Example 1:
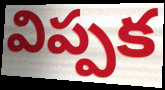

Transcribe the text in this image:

విప్పక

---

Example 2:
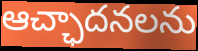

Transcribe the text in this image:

ఆచ్ఛాదనలను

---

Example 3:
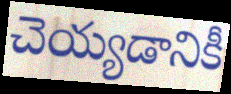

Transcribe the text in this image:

చెయ్యడానికీ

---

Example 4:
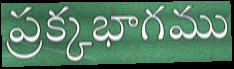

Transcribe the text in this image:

ప్రక్కభాగము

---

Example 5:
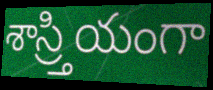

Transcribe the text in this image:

శాస్ర్తియంగా